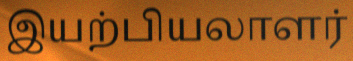
இயற்பியலாளர்